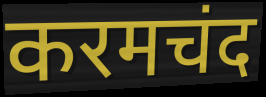
करमचंद